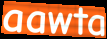
aawta